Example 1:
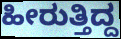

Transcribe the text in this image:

ಹೀರುತ್ತಿದ್ದ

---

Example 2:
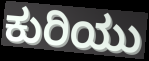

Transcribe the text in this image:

ಕುರಿಯು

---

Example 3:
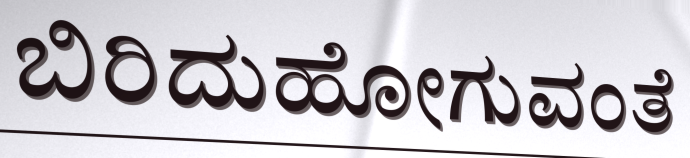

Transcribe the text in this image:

ಬಿರಿದುಹೋಗುವಂತೆ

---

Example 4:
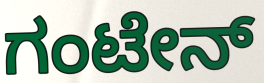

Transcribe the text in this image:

ಗಂಟೇನ್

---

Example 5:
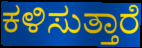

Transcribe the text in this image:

ಕಳಿಸುತ್ತಾರೆ